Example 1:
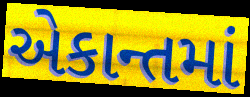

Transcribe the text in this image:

એકાન્તમાં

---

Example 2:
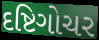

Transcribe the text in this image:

દષ્ટિગોચર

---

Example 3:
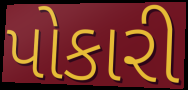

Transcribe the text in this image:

પોકારી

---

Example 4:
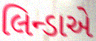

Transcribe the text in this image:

લિન્ડાએ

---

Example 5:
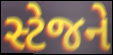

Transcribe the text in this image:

સ્ટેજને